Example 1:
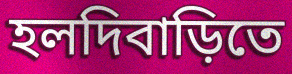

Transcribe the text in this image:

হলদিবাড়িতে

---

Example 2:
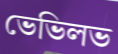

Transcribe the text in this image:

ভেভিলভ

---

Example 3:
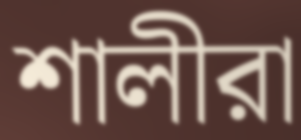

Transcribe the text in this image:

শালীরা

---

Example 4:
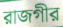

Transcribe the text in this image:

রাজগীর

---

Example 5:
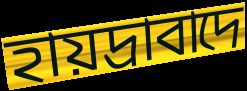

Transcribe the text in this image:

হায়দ্রাবাদে